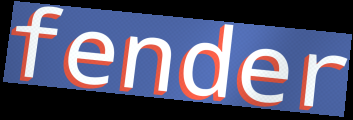
fender